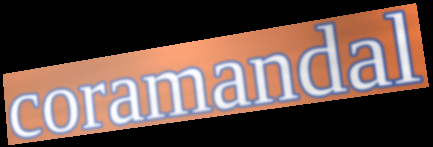
coramandal